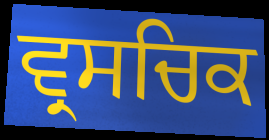
ਵ੍ਰਸਚਿਕ